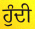
ਹੁੰਦੀ